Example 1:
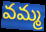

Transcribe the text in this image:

వమ్మ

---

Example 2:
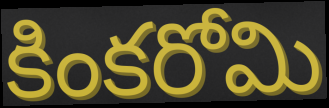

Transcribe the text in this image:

కింకరోమి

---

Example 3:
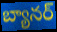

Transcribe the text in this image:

బ్యానర్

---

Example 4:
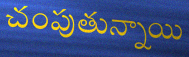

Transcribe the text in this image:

చంపుతున్నాయి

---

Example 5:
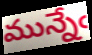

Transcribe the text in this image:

మున్నేఁ